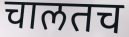
चालतच